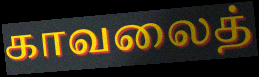
காவலைத்